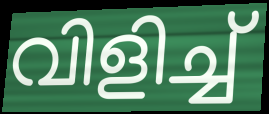
വിളിച്ച്